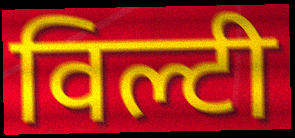
विल्टी